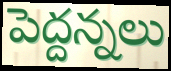
పెద్దన్నలు